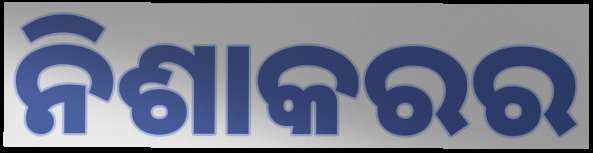
ନିଶାକରର